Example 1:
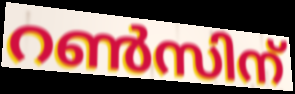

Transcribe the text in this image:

റൺസിന്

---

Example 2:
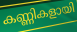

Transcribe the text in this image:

കണ്ണികളായി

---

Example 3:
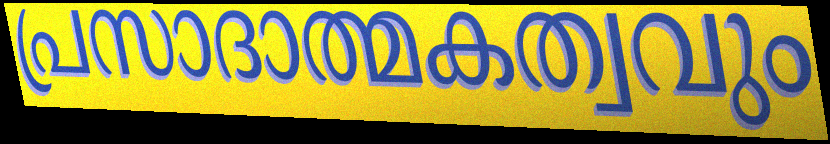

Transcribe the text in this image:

പ്രസാദാത്മകത്വവും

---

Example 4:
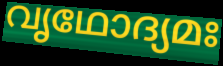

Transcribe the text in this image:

വൃഥോദ്യമഃ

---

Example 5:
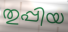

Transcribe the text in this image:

തുപ്പിയ